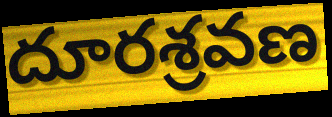
దూరశ్రవణ